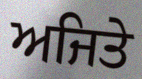
ਅਜਿਤੇ